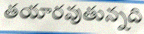
తయారవుతున్నది